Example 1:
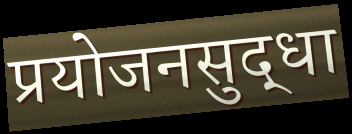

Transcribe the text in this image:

प्रयोजनसुद्धा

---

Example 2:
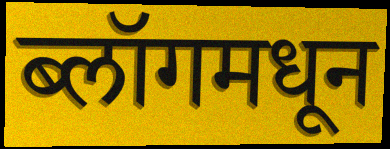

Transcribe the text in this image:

ब्लॉगमधून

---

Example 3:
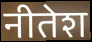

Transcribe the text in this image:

नीतेश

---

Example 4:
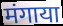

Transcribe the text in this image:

मंगाया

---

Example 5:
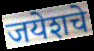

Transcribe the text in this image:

जयेशचे